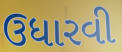
ઉધારવી